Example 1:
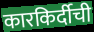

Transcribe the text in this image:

कारकिर्दीची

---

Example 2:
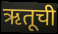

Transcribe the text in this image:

ॠतूची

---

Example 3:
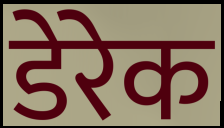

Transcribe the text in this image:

डेरेक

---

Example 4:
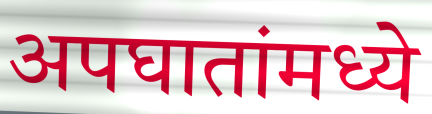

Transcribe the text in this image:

अपघातांमध्ये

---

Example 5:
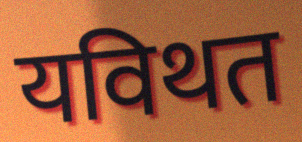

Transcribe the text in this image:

यविथत